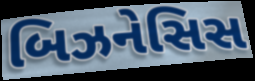
બિઝનેસિસ